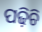
ପଢ଼ିଚି